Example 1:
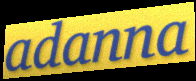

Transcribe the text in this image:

adanna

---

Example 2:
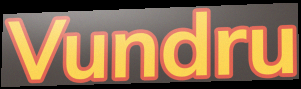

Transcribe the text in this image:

Vundru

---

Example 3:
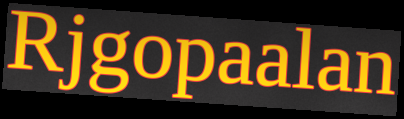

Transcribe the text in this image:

Rjgopaalan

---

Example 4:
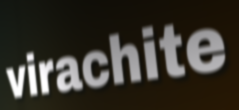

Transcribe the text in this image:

virachite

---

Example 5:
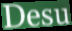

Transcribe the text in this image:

Desu